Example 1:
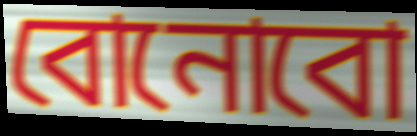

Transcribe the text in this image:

বোনোবো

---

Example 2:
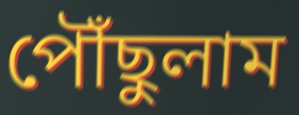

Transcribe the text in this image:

পৌঁছুলাম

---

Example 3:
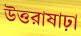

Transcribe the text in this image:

উত্তরাষাঢ়া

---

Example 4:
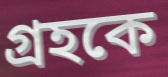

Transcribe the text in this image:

গ্রহকে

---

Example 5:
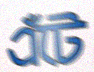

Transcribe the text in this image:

এঁটে